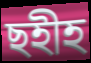
ছহীহ